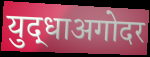
युद्धाअगोदर